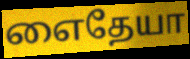
எைதேயா